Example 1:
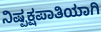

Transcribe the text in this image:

ನಿಷ್ಪಕ್ಷಪಾತಿಯಾಗಿ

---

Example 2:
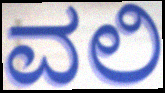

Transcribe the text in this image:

ವಲಿ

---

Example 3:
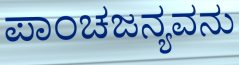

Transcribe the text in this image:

ಪಾಂಚಜನ್ಯವನು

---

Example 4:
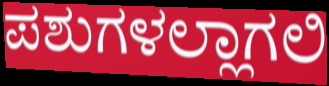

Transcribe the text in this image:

ಪಶುಗಳಲ್ಲಾಗಲಿ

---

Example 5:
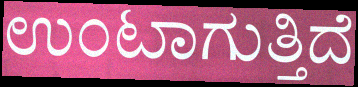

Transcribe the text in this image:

ಉಂಟಾಗುತ್ತಿದೆ